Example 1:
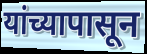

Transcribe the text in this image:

यांच्यापासून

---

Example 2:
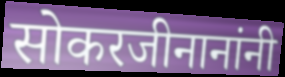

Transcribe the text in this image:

सोकरजीनानांनी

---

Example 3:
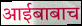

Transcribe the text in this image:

आईबाबाच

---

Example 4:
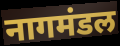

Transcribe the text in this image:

नागमंडल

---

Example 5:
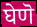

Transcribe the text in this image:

घेणॆ